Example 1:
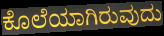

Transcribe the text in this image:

ಕೊಲೆಯಾಗಿರುವುದು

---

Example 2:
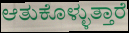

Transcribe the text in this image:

ಆತುಕೊಳ್ಳುತ್ತಾರೆ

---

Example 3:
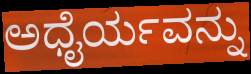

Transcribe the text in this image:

ಅಧೈರ್ಯವನ್ನು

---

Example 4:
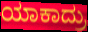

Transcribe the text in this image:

ಯಾಕಾದ್ರು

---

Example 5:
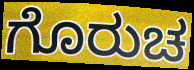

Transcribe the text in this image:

ಗೊರುಚ